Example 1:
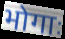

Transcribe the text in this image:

भोगाः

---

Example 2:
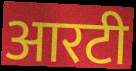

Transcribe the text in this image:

आरटी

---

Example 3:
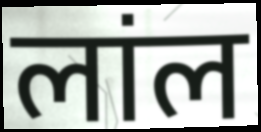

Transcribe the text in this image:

लांल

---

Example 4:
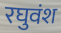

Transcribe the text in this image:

रघुवंश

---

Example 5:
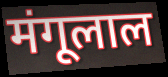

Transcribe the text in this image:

मंगूलाल